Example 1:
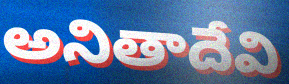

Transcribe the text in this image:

అనితాదేవి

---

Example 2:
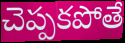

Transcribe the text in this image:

చెప్పకపోతే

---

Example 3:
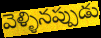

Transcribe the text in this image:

వెళ్ళినప్పుడు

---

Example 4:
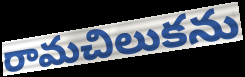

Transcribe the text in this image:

రామచిలుకను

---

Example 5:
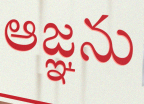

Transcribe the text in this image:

ఆజ్ఞను